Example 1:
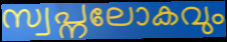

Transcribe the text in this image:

സ്വപ്നലോകവും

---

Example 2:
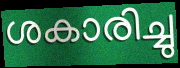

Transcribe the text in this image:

ശകാരിച്ചു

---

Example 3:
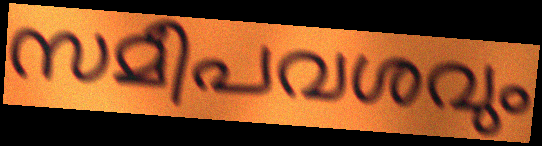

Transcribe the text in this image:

സമീപവശവും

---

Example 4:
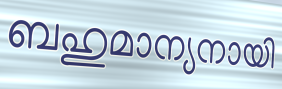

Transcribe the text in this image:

ബഹുമാന്യനായി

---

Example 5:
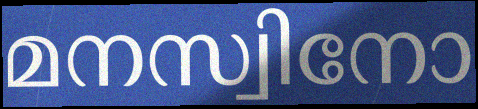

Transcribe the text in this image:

മനസ്വിനോ